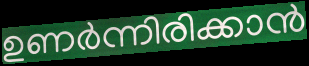
ഉണർന്നിരിക്കാൻ